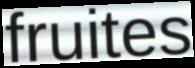
fruites